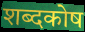
शब्दकोष